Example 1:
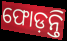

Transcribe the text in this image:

ଫୋଡ଼ନ୍ତି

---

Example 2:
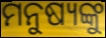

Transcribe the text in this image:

ମନୁଷ୍ୟଙ୍କୁ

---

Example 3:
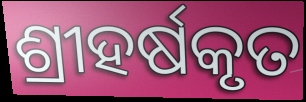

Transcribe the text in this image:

ଶ୍ରୀହର୍ଷକୃତ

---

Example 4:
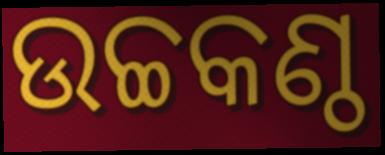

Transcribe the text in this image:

ଉଚ୍ଚକଣ୍ଠ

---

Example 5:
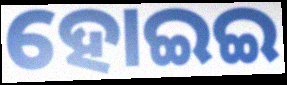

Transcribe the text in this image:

ହୋଇଇ